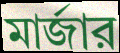
মার্জার